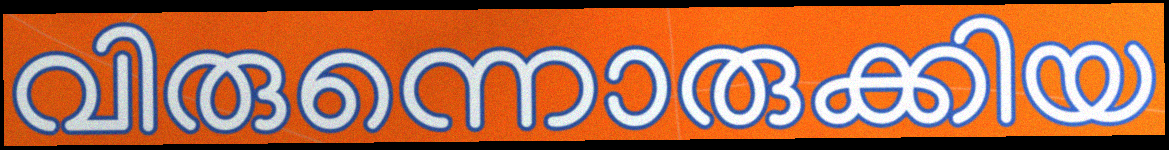
വിരുന്നൊരുക്കിയ